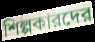
শিল্পকারদের